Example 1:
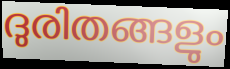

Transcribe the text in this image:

ദുരിതങ്ങളും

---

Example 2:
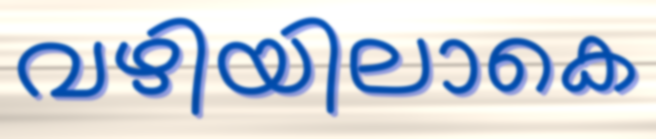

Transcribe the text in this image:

വഴിയിലാകെ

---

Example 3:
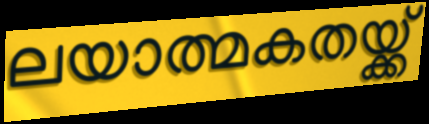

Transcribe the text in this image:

ലയാത്മകതയ്ക്ക്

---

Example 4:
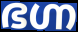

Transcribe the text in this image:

ഭഗ്ന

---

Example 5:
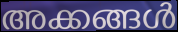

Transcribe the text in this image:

അക്കങ്ങൾ